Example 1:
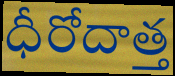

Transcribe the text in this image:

ధీరోదాత్త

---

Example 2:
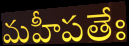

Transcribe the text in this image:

మహీపతేః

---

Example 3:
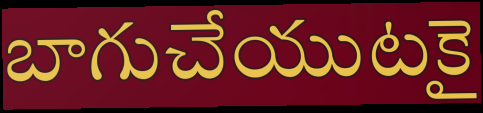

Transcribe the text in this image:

బాగుచేయుటకై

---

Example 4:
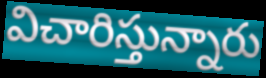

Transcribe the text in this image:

విచారిస్తున్నారు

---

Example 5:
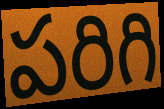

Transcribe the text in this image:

పరిగి